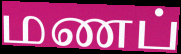
மணப்